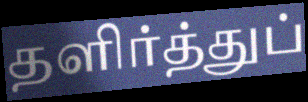
தளிர்த்துப்